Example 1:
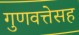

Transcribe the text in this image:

गुणवत्तेसह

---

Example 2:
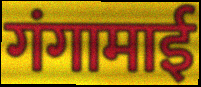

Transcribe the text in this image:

गंगामाई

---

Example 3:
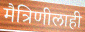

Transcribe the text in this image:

मैत्रिणीलाही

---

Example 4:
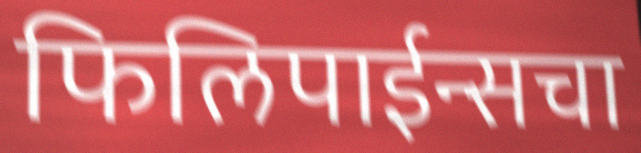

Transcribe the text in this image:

फिलिपाईन्सचा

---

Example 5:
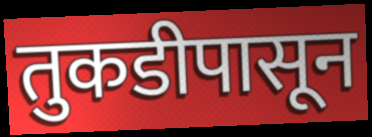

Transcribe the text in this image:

तुकडीपासून